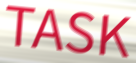
TASK